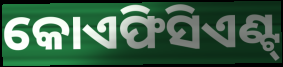
କୋଏଫିସିଏଣ୍ଟ୍